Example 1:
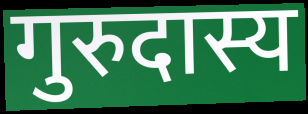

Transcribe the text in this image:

गुरुदास्य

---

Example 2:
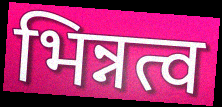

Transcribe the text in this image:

भिन्नत्व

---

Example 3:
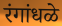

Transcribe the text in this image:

रंगांधळे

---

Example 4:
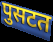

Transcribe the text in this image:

पुसटत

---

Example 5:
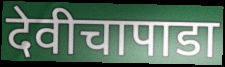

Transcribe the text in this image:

देवीचापाडा